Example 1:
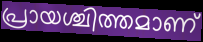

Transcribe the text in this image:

പ്രായശ്ചിത്തമാണ്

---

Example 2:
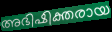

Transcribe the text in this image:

അഭിഷിക്തരായ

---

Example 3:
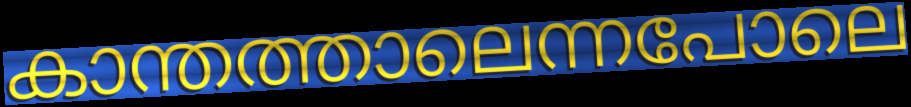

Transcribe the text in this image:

കാന്തത്താലെന്നപോലെ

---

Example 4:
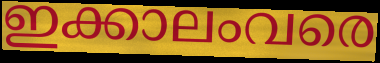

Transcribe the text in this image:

ഇക്കാലംവരെ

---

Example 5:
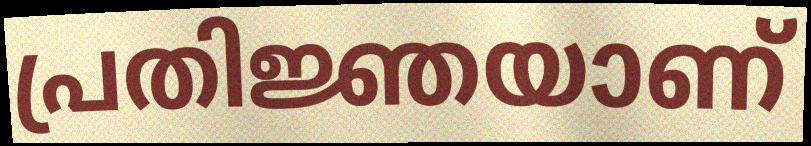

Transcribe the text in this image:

പ്രതിജ്ഞയാണ്